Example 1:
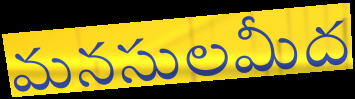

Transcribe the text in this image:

మనసులమీద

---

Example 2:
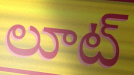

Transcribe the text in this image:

లూట్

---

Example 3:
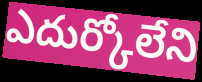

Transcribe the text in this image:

ఎదుర్కోలేని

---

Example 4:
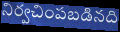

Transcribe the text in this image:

నిర్వచింపబడినది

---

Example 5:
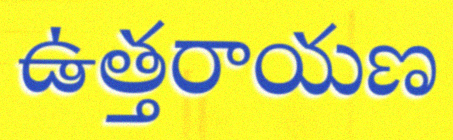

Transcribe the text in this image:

ఉత్తరాయణ